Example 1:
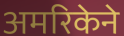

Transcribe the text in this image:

अमरिकेने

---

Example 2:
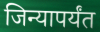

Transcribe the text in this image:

जिन्यापर्यंत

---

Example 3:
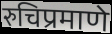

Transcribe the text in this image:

रुचिप्रमाणे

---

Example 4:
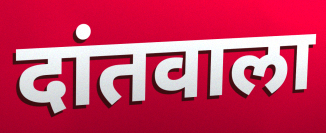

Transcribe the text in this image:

दांतवाला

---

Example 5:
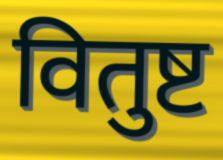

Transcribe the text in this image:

वितुष्ट